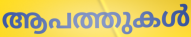
ആപത്തുകൾ